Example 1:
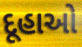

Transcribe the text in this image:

દૂહાઓ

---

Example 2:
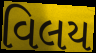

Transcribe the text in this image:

વિલય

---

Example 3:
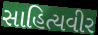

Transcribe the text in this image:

સાહિત્યવીર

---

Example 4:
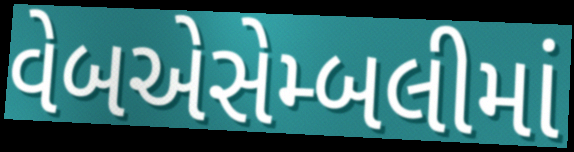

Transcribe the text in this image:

વેબએસેમ્બલીમાં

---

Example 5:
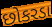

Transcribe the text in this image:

છોકરડા